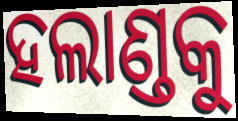
ହଲାଣ୍ଡକୁ